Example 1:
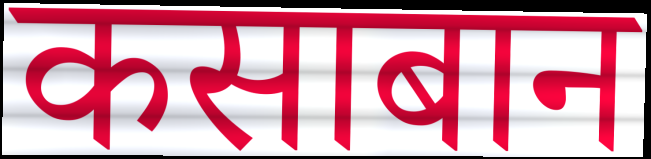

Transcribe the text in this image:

कसाबान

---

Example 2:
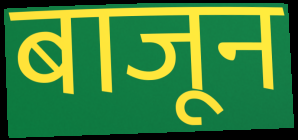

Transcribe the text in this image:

बाजून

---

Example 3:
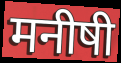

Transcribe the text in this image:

मनीषी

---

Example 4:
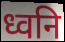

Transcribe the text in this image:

ध्वनि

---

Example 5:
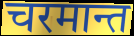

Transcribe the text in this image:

चरमान्त